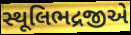
સ્થૂલિભદ્રજીએ